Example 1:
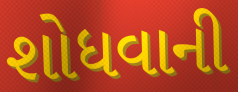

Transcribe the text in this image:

શોધવાની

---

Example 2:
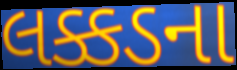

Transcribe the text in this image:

લક્કડના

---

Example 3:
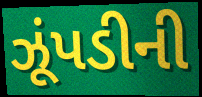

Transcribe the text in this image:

ઝૂંપડીની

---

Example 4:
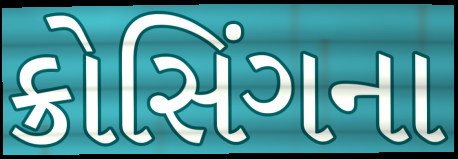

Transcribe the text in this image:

ક્રોસિંગના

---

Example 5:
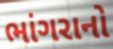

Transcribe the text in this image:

ભાંગરાનો